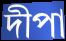
দীপা